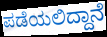
ಪಡೆಯಲಿದ್ದಾನೆ